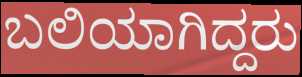
ಬಲಿಯಾಗಿದ್ದರು